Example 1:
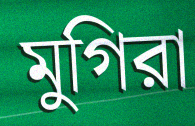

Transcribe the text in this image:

মুগিরা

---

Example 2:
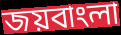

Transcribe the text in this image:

জয়বাংলা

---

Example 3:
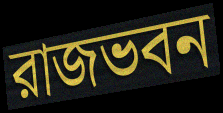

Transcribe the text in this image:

রাজভবন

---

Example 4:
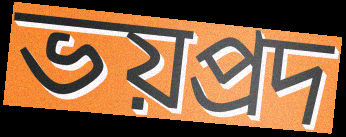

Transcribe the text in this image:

ভয়প্রদ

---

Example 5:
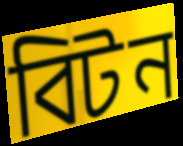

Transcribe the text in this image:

বিটন